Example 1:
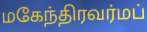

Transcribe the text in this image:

மகேந்திரவர்மப்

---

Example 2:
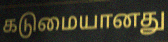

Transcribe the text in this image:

கடுமையானது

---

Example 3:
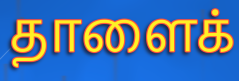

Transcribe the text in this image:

தாளைக்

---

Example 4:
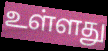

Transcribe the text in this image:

உள்ளது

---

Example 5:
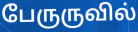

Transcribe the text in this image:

பேருருவில்